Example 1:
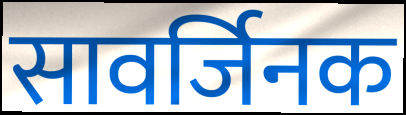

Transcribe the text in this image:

सावर्जिनक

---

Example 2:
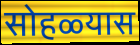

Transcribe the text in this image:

सोहळ्यास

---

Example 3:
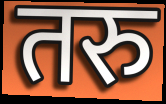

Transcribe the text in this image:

तरु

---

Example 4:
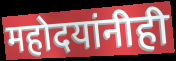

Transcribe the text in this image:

महोदयांनीही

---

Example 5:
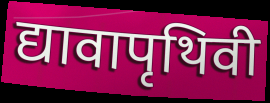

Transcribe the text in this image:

द्यावापृथिवी